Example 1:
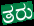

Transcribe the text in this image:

ತರು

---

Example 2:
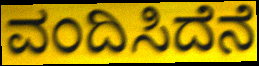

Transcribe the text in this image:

ವಂದಿಸಿದೆನೆ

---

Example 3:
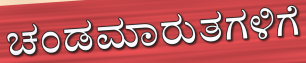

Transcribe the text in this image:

ಚಂಡಮಾರುತಗಳಿಗೆ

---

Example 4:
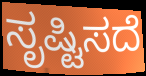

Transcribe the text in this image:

ಸೃಷ್ಟಿಸದೆ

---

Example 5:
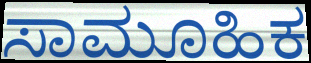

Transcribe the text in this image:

ಸಾಮೂಹಿಕ